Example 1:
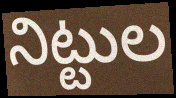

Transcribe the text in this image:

నిట్టుల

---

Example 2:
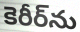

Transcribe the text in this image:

కెరీర్‌ను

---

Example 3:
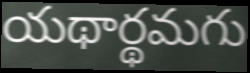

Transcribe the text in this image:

యథార్థమగు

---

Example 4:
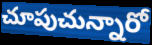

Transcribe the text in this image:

చూపుచున్నారో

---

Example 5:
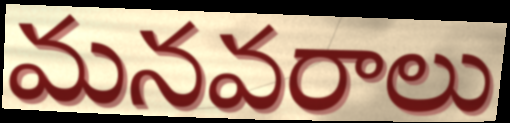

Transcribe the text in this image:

మనవరాలు